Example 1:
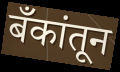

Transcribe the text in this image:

बँकांतून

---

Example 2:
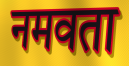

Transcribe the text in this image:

नमवता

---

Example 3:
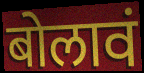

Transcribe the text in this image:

बोलावं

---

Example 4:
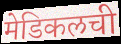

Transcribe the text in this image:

मेडिकलची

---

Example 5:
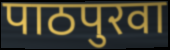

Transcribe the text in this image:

पाठपुरवा